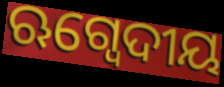
ଋଗ୍ବେଦୀୟ